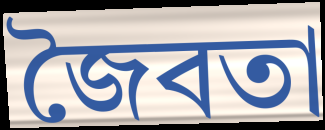
জৈবতা